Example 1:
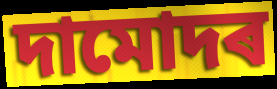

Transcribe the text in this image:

দামোদৰ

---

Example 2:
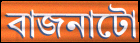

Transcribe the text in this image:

বাজনাটো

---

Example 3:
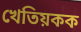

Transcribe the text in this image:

খেতিয়কক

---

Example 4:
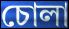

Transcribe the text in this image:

চোলা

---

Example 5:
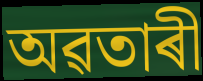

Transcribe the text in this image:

অৱতাৰী